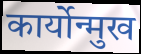
कार्योन्मुख